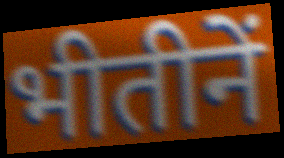
भीतीनें